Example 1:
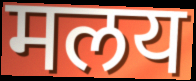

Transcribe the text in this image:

मलय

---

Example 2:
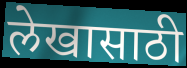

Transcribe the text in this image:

लेखासाठी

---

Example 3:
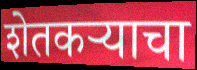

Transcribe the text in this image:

शेतकऱ्याचा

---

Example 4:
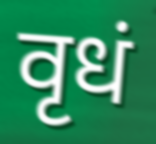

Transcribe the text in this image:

वृधं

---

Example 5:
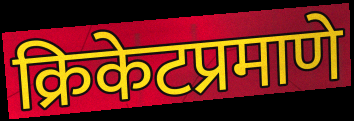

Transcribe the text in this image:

क्रिकेटप्रमाणे